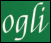
ogli